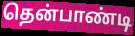
தென்பாண்டி